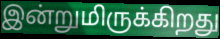
இன்றுமிருக்கிறது